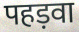
पहड़वा